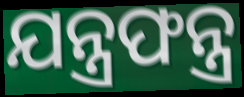
ଯନ୍ତ୍ରଫନ୍ତ୍ର